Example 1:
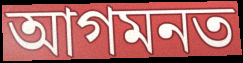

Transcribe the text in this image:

আগমনত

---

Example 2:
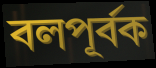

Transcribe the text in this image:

বলপূৰ্বক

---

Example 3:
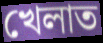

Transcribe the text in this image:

খেলাত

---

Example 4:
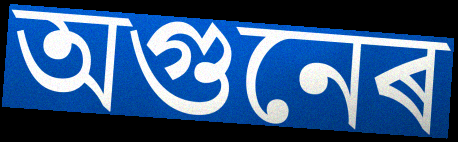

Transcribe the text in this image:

অগুনেৰ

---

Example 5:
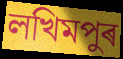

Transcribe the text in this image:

লখিমপুৰ